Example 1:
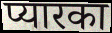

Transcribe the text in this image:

प्यारका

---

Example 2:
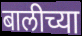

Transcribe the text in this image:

बालीच्या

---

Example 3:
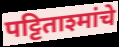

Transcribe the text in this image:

पट्टिताश्मांचे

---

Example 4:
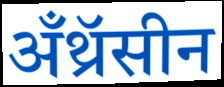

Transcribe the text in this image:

अँथ्रॅसीन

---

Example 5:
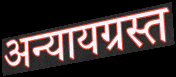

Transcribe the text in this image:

अन्यायग्रस्त